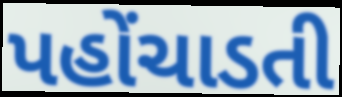
પહોંચાડતી